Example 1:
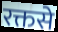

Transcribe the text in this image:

रक्तसे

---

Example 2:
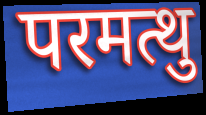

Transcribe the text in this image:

परमत्थु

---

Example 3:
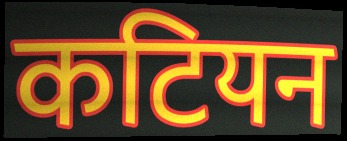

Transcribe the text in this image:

कटियन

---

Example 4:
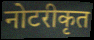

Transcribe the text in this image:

नोटरीकृत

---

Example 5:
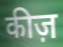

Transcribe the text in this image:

कीज़